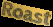
Roast